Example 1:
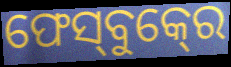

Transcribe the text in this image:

ଫେସ୍‍ବୁକ୍‍ରେ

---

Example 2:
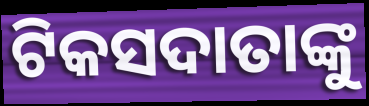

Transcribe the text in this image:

ଟିକସଦାତାଙ୍କୁ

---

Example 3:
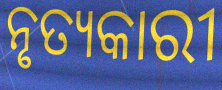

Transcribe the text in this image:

ନୃତ୍ୟକାରୀ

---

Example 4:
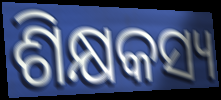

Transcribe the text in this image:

ଶିକ୍ଷକସ୍ୟ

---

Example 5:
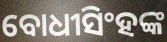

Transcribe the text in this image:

ବୋଧୀସିଂହଙ୍କ